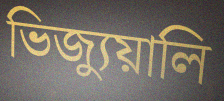
ভিজ্যুয়ালি